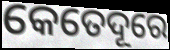
କେତେଦୂରେ